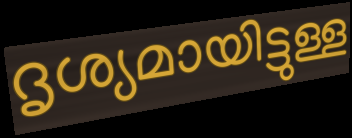
ദൃശ്യമായിട്ടുള്ള